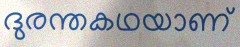
ദുരന്തകഥയാണ്